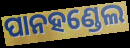
ପାନହଣ୍ଡେଲ